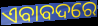
ଏବାବଦରେ